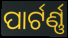
ପାର୍ଟର୍ଣ୍ଣ